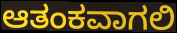
ಆತಂಕವಾಗಲಿ